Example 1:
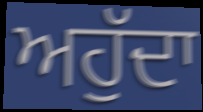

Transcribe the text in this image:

ਅਹੁੱਦਾ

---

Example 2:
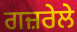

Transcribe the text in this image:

ਗਜ਼ਰੇਲੇ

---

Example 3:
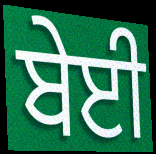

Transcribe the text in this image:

ਬੇਈ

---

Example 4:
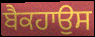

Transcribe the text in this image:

ਬੈਕਹਾਉਸ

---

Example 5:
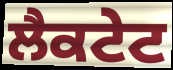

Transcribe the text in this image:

ਲੈਕਟੇਟ